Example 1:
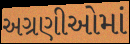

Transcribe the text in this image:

અગ્રણીઓમાં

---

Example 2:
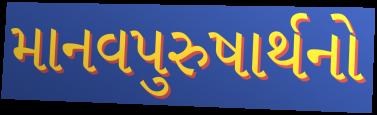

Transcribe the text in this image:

માનવપુરુષાર્થનો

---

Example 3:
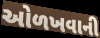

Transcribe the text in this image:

ઓળખવાની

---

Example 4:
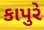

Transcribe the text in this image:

કાપુરે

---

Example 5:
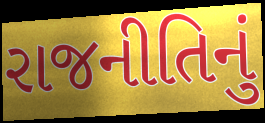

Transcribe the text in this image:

રાજનીતિનું